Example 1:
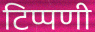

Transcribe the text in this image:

टिप्पणी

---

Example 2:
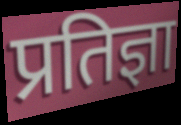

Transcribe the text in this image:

प्रतिज्ञा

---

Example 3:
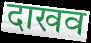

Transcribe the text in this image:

दाखव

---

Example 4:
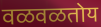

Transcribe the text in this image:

वळवळतोय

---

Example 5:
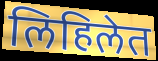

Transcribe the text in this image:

लिहिलेत